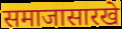
समाजासारखे